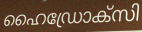
ഹൈഡ്രോക്സി